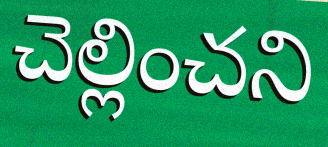
చెల్లించని